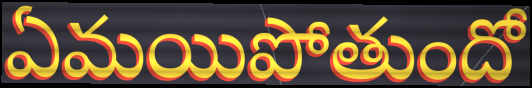
ఏమయిపోతుందో